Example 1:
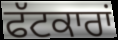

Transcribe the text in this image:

ਫੱਟਕਾਰਾਂ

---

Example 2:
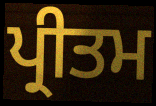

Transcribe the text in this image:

ਪ੍ਰੀਤਮ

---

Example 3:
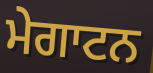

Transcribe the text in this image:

ਮੇਗਾਟਨ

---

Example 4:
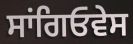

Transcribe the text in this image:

ਸਾਂਗਿਓਵੇਸ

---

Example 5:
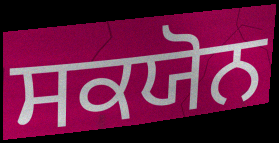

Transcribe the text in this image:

ਸਕਯੋਨ